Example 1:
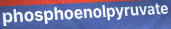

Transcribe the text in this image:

phosphoenolpyruvate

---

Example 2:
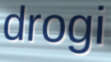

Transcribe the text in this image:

drogi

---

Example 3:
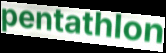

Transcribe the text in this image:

pentathlon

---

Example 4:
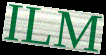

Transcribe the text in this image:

ILM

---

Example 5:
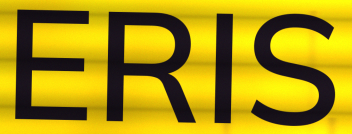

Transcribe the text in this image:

ERIS